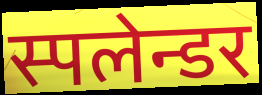
स्पलेन्डर